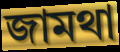
জামথা